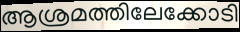
ആശ്രമത്തിലേക്കോടി